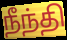
நீந்தி